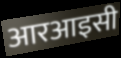
आरआइसी